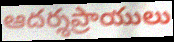
ఆదర్శప్రాయులు